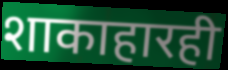
शाकाहारही